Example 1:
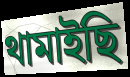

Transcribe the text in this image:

থামাইছি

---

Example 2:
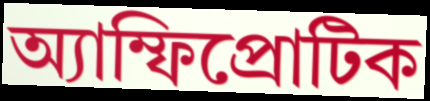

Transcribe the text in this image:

অ্যাম্ফিপ্রোটিক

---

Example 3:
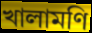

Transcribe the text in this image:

খালামণি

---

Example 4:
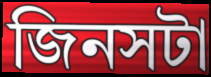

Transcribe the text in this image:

জিনসটা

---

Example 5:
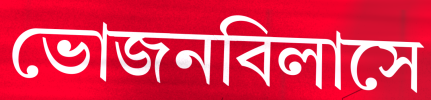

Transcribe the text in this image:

ভোজনবিলাসে